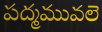
పద్మమువలె